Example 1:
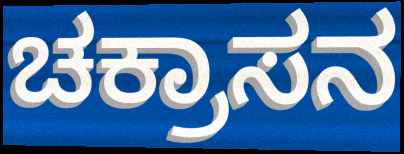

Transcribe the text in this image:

ಚಕ್ರಾಸನ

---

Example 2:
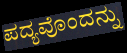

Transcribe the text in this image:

ಪದ್ಯವೊಂದನ್ನು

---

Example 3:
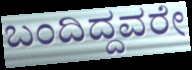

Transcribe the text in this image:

ಬಂದಿದ್ದವರೇ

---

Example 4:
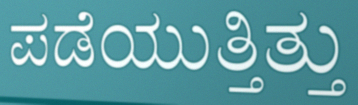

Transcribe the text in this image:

ಪಡೆಯುತ್ತಿತ್ತು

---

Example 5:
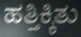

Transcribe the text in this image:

ಹತ್ತಿಕ್ಕಿತು